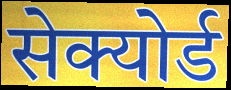
सेक्योर्ड